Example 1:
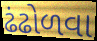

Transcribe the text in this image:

ઢંઢોળવા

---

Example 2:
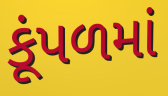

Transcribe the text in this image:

કૂંપળમાં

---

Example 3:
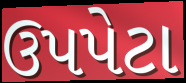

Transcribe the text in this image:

ઉપપેટા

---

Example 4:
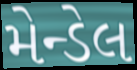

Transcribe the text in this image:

મેન્ડેલ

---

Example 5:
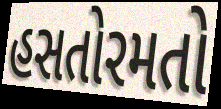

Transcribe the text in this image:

હસતોરમતો